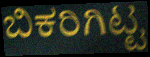
ಬಿಕರಿಗಿಟ್ಟ